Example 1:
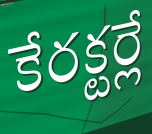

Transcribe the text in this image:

కేరక్టర్లే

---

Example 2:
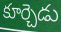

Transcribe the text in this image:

కూర్చెడు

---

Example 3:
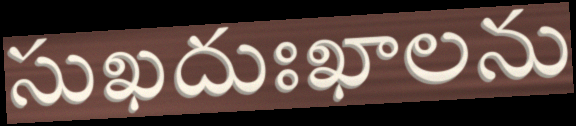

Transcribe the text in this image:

సుఖదుఃఖాలను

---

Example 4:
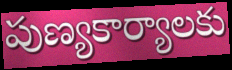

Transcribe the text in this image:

పుణ్యకార్యాలకు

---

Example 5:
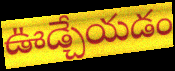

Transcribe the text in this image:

ఊడ్చేయడం